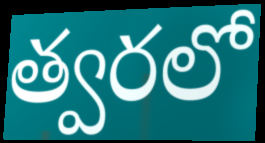
త్వరలో